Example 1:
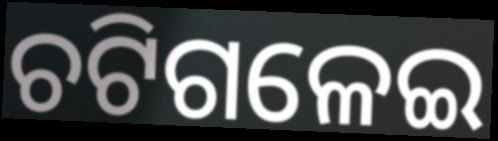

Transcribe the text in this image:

ଚଟିଗଳେଇ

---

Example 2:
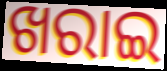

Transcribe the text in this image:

ଖରାଇ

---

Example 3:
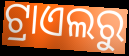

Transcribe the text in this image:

ଟ୍ରାଏଲରୁ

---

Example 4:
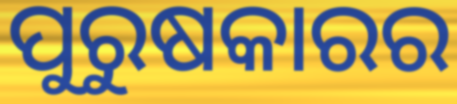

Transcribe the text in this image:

ପୁରୁଷକାରର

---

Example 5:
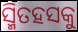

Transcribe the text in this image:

ସ୍ମିତହସକୁ